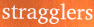
stragglers